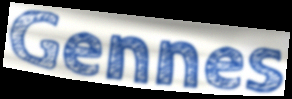
Gennes